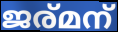
ജര്മന്